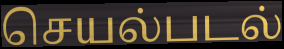
செயல்படல்